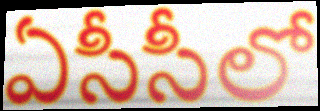
ఏసీసీలో